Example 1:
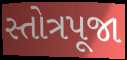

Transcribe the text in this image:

સ્તોત્રપૂજા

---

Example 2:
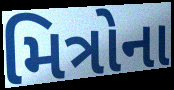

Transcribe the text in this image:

મિત્રોના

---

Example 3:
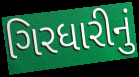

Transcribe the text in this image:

ગિરધારીનું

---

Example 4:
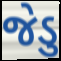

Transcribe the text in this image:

જેડુ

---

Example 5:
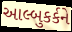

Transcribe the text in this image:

આલ્બુકર્કને